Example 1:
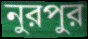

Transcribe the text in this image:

নুরপুর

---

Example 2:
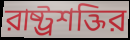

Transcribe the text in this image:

রাষ্ট্রশক্তির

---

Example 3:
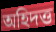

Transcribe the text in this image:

অহিদত্ত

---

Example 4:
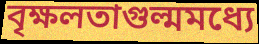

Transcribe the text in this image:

বৃক্ষলতাগুল্মমধ্যে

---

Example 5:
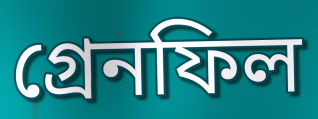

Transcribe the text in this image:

গ্রেনফিল